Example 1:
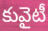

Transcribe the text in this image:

కువైటీ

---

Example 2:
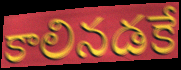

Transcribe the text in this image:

కాలినడకే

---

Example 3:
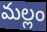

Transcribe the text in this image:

మల్లం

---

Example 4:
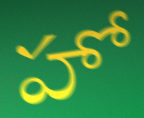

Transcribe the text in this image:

హో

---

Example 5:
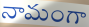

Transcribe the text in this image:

నామంగా